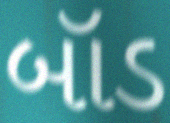
બૉડ